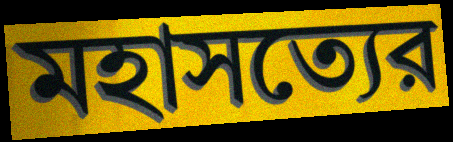
মহাসত্যের